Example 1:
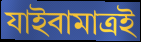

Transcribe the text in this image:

যাইবামাত্রই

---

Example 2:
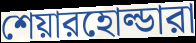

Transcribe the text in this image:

শেয়ারহোল্ডারা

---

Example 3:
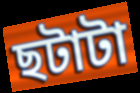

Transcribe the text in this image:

ছটাটা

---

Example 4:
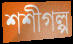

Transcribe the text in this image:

শশীগল্প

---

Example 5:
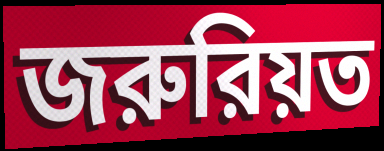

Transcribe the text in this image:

জরুরিয়ত